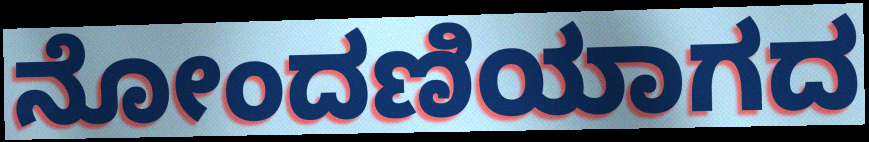
ನೋಂದಣಿಯಾಗದ